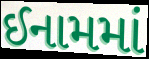
ઈનામમાં